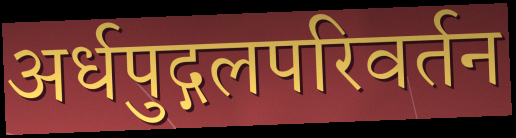
अर्धपुद्गलपरिवर्तन